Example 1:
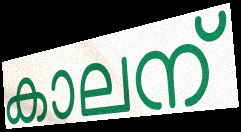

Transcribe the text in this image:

കാലന്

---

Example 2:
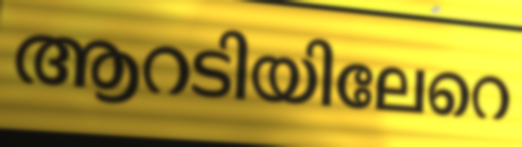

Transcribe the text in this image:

ആറടിയിലേറെ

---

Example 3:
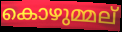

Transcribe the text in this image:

കൊഴുമ്മല്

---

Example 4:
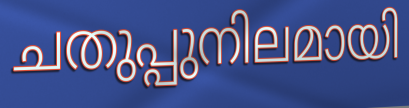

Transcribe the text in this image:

ചതുപ്പുനിലമായി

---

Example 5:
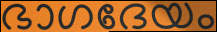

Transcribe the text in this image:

ഭാഗദേയം